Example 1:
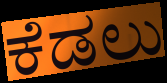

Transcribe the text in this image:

ಕೆಡಲು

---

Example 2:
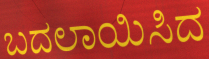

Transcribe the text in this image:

ಬದಲಾಯಿಸಿದ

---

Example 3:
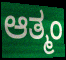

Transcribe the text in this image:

ಆತ್ಮಂ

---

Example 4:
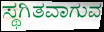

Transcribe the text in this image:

ಸ್ಥಗಿತವಾಗುವ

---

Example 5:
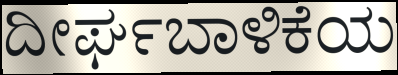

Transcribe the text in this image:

ದೀರ್ಘಬಾಳಿಕೆಯ